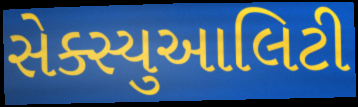
સેક્સ્યુઆલિટી